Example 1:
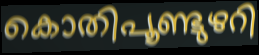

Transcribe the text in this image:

കൊതിപൂണ്ടുഴറി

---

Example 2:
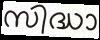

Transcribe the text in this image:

സിദ്ധാ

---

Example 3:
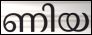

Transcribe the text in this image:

ണിയ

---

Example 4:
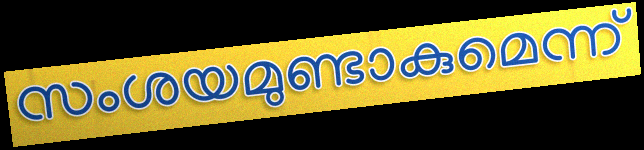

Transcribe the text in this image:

സംശയമുണ്ടാകുമെന്ന്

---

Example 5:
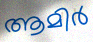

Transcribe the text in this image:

ആമിർ